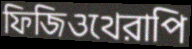
ফিজিওথেরাপি